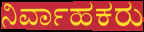
ನಿರ್ವಾಹಕರು